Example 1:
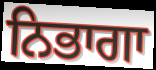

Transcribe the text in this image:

ਨਿਭਾਗਾ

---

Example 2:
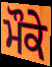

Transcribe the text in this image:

ਮੌਕੇ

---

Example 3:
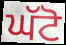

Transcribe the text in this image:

ਘੱਟੋ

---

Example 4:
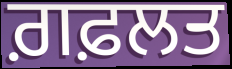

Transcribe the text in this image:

ਗ਼ਫ਼ਲਤ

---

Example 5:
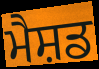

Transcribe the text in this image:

ਮੈਸ਼ਡ